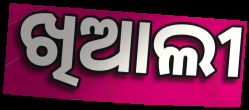
ଖିଆଲୀ